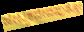
ಜೇಟ್ಠಕದೇವಪುತ್ತೋ